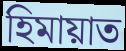
হিমায়াত